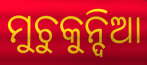
ମୁଚୁକୁନ୍ଦିଆ